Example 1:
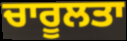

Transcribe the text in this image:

ਚਾਰੂਲਤਾ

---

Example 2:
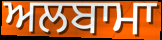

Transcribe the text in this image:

ਅਲਬਾਮਾ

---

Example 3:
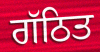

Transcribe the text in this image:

ਗੱਠਿਤ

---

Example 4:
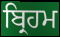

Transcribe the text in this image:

ਬ੍ਰਿਹਮ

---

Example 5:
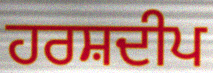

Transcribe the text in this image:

ਹਰਸ਼ਦੀਪ